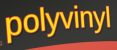
polyvinyl